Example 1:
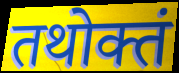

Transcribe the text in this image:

तथोक्तं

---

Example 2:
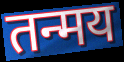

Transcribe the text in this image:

तन्‍मय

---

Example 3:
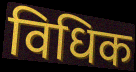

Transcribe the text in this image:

विधिक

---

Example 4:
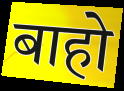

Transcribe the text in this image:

बाहो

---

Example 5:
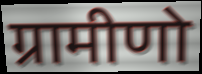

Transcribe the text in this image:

ग्रामीणो